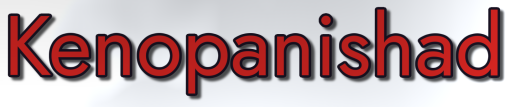
Kenopanishad